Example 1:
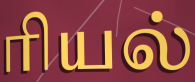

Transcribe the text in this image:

ரியல்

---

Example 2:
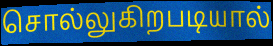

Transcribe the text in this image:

சொல்லுகிறபடியால்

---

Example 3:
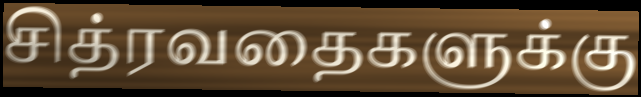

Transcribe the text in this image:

சித்ரவதைகளுக்கு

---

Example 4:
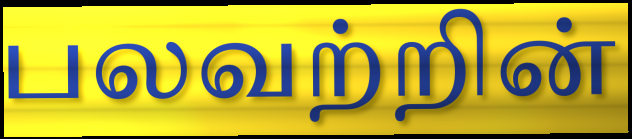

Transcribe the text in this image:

பலவற்றின்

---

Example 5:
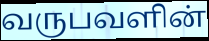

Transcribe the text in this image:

வருபவளின்